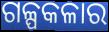
ଗଳ୍ପକଳାର